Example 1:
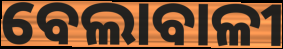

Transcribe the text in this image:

ବେଲାବାଳୀ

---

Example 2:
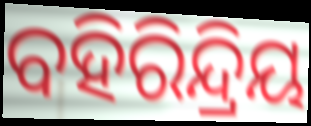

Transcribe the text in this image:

ବହିରିନ୍ଦ୍ରିୟ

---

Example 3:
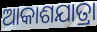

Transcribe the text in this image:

ଆକାଶଯାତ୍ରା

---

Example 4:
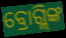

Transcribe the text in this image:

ବ୍ରୋଗ୍ଲିଙ୍କ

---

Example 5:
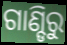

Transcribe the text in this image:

ଗାଣ୍ଡିରୁ